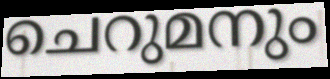
ചെറുമനും